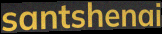
santshenai